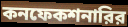
কনফেকশনারির